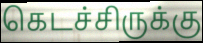
கெடச்சிருக்கு